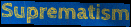
Suprematism